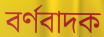
বৰ্ণবাদক